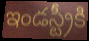
ఇండస్ట్రీకి